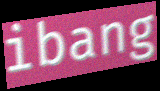
ibang